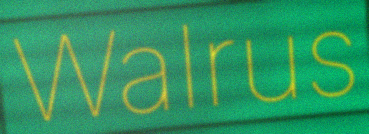
Walrus